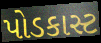
પોડકાસ્ટ